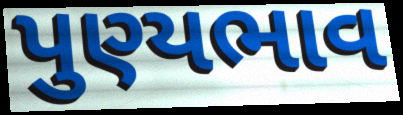
પુણ્યભાવ